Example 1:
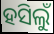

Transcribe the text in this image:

ହସିଲୁଁ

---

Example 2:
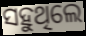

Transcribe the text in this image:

ସହୁଥିଲେ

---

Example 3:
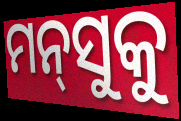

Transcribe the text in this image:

ମନ୍‌ସୁକୁ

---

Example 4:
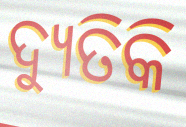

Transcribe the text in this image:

ଦ୍ୟୁତିକି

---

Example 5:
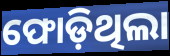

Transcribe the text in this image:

ଫୋଡ଼ିଥିଲା